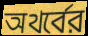
অথর্বের